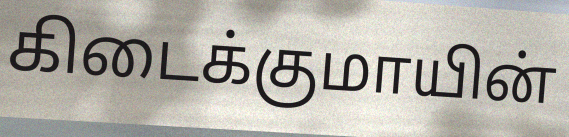
கிடைக்குமாயின்